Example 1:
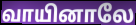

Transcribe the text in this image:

வாயினாலே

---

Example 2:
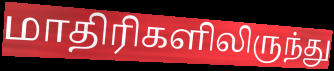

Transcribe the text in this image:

மாதிரிகளிலிருந்து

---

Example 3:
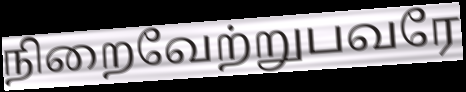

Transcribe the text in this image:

நிறைவேற்றுபவரே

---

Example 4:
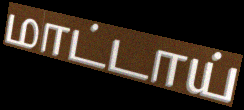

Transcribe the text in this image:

மாட்டாய்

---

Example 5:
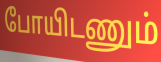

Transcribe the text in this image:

போயிடணும்